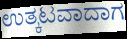
ಉತ್ಕಟವಾದಾಗ